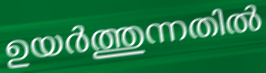
ഉയർത്തുന്നതിൽ